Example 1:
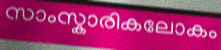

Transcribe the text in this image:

സാംസ്കാരികലോകം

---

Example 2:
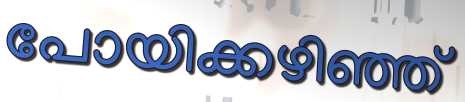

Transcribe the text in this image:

പോയിക്കഴിഞ്ഞ്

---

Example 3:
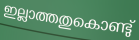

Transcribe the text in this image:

ഇല്ലാത്തതുകൊണ്ടു്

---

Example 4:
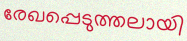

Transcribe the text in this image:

രേഖപ്പെടുത്തലായി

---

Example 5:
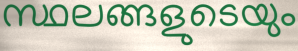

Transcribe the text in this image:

സ്ഥലങ്ങളുടെയും